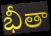
భీతా